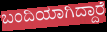
ಬಂದಿಯಾಗಿದ್ದಾರೆ